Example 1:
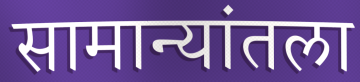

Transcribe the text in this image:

सामान्यांतला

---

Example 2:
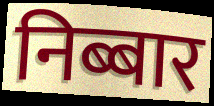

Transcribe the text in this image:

निब्बार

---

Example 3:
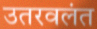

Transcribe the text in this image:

उतरवलंत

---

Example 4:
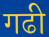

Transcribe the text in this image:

गढी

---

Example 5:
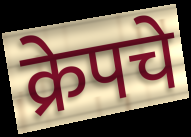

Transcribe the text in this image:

क्रेपचे